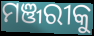
ମଞ୍ଜରୀକୁ